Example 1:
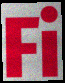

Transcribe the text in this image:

Fi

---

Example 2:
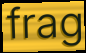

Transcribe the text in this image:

frag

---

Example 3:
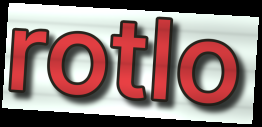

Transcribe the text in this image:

rotlo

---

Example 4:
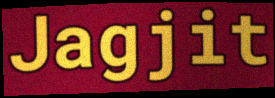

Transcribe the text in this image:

Jagjit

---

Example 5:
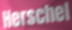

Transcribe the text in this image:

Herschel